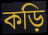
কড়ি